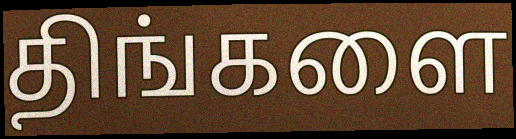
திங்களை